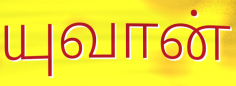
யுவான்